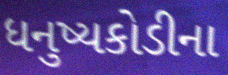
ધનુષ્યકોડીના